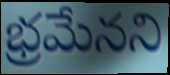
భ్రమేనని